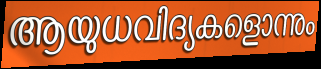
ആയുധവിദ്യകളൊന്നും